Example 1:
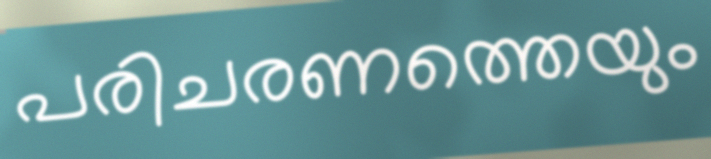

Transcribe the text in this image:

പരിചരണത്തെയും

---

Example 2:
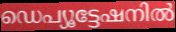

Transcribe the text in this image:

ഡെപ്യൂട്ടേഷനിൽ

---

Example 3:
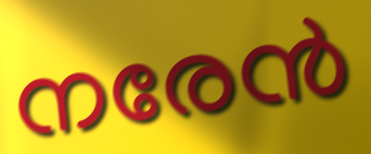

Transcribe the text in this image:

നരേൻ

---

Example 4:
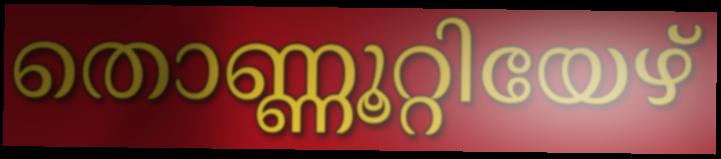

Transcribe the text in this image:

തൊണ്ണൂറ്റിയേഴ്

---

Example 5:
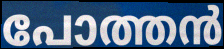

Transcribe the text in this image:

പോത്തൻ